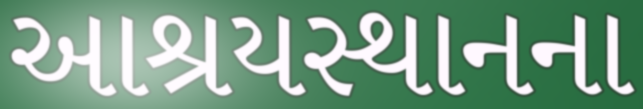
આશ્રયસ્થાનના